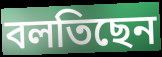
বলতিছেন